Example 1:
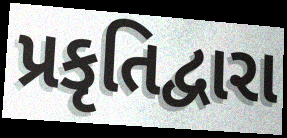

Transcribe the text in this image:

પ્રકૃતિદ્વારા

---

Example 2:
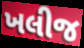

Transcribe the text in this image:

ખલીજ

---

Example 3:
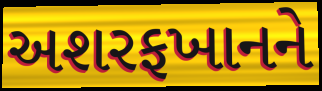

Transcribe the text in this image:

અશરફખાનને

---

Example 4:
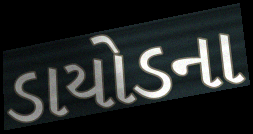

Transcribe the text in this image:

ડાયોડના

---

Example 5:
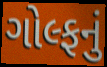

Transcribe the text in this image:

ગોલ્ફનું